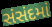
સંસંદમાં